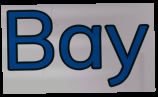
Bay